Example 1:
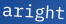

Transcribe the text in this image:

aright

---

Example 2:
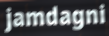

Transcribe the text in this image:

jamdagni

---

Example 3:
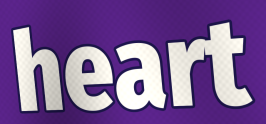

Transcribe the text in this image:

heart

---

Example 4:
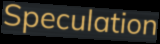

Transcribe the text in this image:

Speculation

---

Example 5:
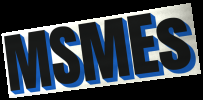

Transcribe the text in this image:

MSMEs